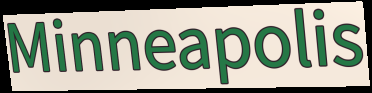
Minneapolis